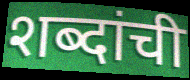
शब्दांची